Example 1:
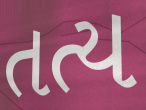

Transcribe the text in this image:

તત્ય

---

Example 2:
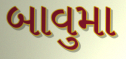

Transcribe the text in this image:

બાવુમા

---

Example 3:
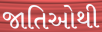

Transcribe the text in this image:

જાતિઓથી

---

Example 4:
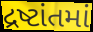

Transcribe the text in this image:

દ્રષ્ટાંતમાં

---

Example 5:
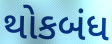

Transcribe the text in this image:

થોકબંધ